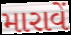
મારાવેં